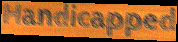
Handicapped